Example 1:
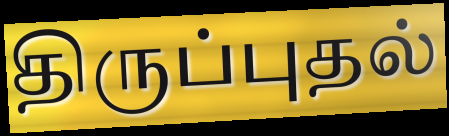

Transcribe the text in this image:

திருப்புதல்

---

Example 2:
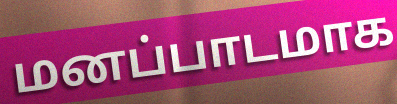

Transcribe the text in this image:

மனப்பாடமாக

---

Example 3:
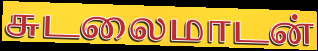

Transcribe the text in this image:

சுடலைமாடன்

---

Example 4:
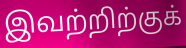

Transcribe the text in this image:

இவற்றிற்குக்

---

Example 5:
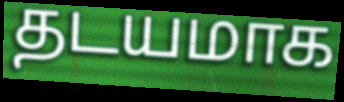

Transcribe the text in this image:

தடயமாக